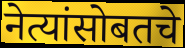
नेत्यांसोबतचे